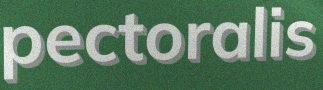
pectoralis